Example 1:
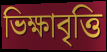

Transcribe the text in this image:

ভিক্ষাবৃত্তি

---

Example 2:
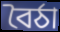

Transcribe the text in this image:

বৈঠা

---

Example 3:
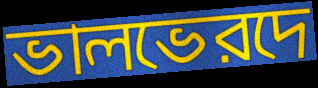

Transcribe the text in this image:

ভালভেরদে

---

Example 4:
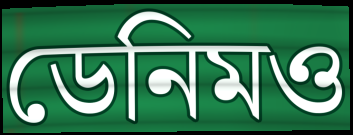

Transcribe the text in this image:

ডেনিমও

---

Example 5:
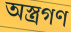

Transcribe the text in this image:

অস্ত্রগণ